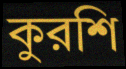
কুরশি